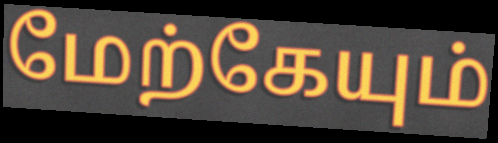
மேற்கேயும்